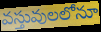
వస్తువులలోనూ